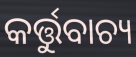
କର୍ତ୍ତୁବାଚ୍ୟ